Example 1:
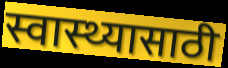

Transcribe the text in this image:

स्वास्थ्यासाठी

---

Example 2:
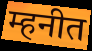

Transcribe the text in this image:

म्हनीत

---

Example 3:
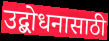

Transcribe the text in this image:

उद्बोधनासाठी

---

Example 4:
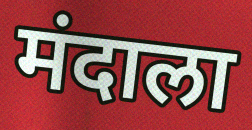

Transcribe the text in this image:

मंदाला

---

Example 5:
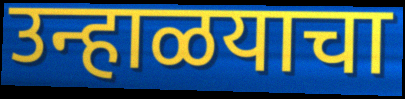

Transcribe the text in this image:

उन्हाळयाचा